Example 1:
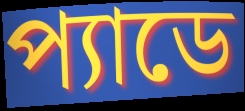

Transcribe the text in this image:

প্যাডে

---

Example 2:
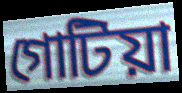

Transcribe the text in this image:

গোটিয়া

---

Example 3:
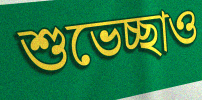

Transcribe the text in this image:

শুভেচ্ছাও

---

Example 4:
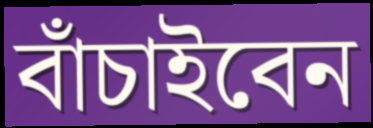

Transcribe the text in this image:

বাঁচাইবেন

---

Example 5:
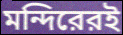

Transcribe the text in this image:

মন্দিরেরই